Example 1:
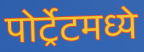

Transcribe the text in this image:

पोर्ट्रेटमध्ये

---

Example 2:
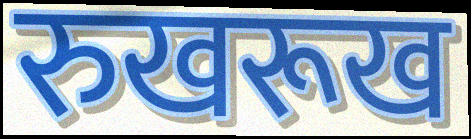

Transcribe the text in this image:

रुखरूख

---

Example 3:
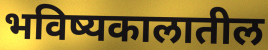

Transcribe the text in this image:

भविष्यकालातील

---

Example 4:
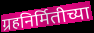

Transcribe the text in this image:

ग्रहनिर्मितीच्या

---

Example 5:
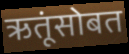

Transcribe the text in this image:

ऋतूंसोबत